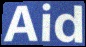
Aid